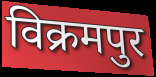
विक्रमपुर